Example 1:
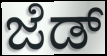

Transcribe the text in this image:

ಜೆಡ್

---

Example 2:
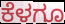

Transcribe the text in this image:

ಕೆಳಗೂ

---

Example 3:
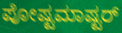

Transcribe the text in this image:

ಪೋಷ್ಟಮಾಷ್ಟರ್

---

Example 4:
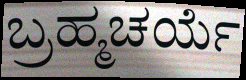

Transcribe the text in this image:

ಬ್ರಹ್ಮಚರ್ಯೆ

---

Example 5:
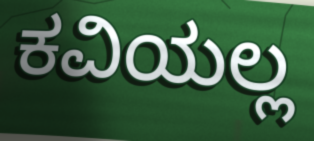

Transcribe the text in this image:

ಕವಿಯಲ್ಲ